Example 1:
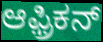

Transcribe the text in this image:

ಆಫ಼್ರಿಕನ್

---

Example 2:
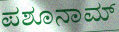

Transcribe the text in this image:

ಪಶೂನಾಮ್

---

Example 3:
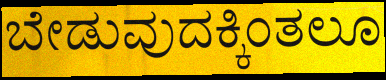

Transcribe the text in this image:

ಬೇಡುವುದಕ್ಕಿಂತಲೂ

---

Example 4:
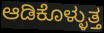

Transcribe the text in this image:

ಆಡಿಕೊಳ್ಳುತ್ತ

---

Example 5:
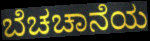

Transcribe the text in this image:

ಬೆಚಚಾನೆಯ